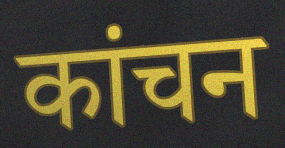
कांचन